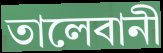
তালেবানী